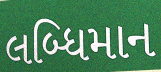
લબ્ધિમાન